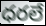
ధరలే